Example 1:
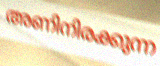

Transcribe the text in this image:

അണിനിരക്കുന്ന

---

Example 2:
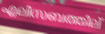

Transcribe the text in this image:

എലിസബത്തില്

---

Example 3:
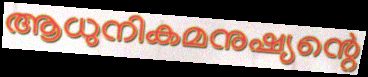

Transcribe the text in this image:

ആധുനികമനുഷ്യന്റെ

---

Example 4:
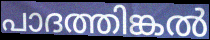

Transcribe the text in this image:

പാദത്തിങ്കൽ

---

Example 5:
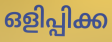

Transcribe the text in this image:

ഒളിപ്പിക്ക